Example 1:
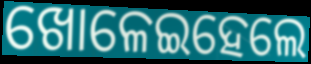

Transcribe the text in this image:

ଖୋଳେଇହେଲେ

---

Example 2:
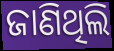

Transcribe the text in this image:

ଜାଣିଥିଲି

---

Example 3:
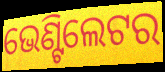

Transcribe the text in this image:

ଭେଣ୍ଟିଲେଟର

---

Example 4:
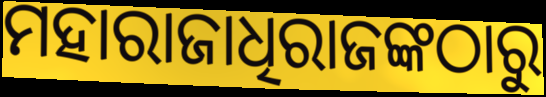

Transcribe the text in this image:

ମହାରାଜାଧିରାଜଙ୍କଠାରୁ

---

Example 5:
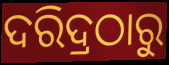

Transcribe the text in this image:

ଦରିଦ୍ରଠାରୁ